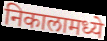
निकालामध्ये